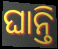
ଘାନ୍ତି